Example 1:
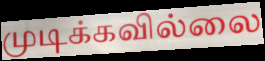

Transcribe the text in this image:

முடிக்கவில்லை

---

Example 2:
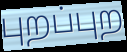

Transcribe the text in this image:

புறப்புற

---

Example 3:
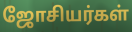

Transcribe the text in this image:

ஜோசியர்கள்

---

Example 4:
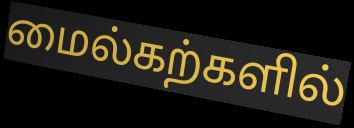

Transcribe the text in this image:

மைல்கற்களில்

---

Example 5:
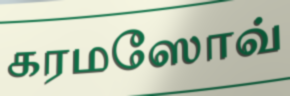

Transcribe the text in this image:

கரமஸோவ்